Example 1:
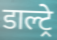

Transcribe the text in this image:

डाल्ट्रे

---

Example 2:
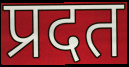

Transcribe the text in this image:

प्रदत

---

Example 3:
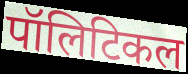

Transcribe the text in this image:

पॉलिटिकल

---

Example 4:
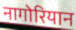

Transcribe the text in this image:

नागोरियान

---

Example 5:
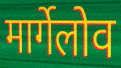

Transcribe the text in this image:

मार्गेलोव